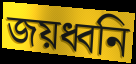
জয়ধ্বনি